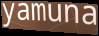
yamuna